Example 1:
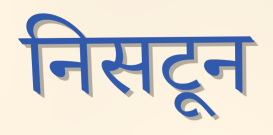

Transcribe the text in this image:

निसटून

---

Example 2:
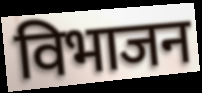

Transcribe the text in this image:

विभाजन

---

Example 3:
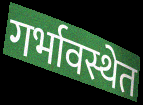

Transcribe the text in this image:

गर्भावस्थेत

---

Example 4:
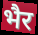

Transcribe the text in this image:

भैर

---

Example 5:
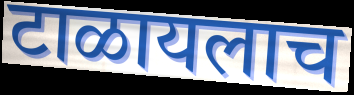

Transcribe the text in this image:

टाळायलाच